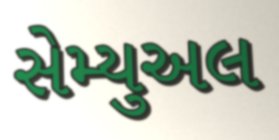
સેમ્યુઅલ